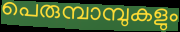
പെരുമ്പാമ്പുകളും